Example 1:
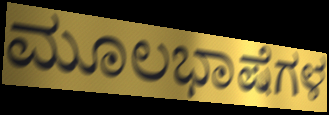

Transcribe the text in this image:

ಮೂಲಭಾಷೆಗಳ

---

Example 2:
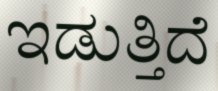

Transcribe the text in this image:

ಇಡುತ್ತಿದೆ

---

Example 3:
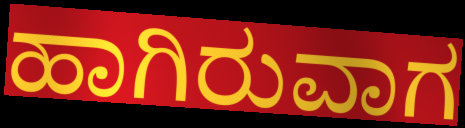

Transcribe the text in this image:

ಹಾಗಿರುವಾಗ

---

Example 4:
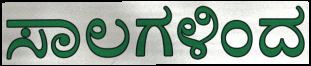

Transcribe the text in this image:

ಸಾಲಗಳಿಂದ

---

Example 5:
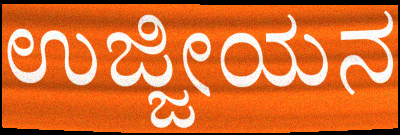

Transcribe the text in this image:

ಉಜ್ಜೀಯನ